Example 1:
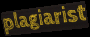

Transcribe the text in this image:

plagiarist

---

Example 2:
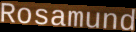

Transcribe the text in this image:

Rosamund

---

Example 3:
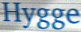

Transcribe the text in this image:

Hygge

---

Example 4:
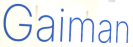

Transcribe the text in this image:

Gaiman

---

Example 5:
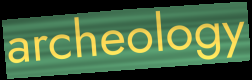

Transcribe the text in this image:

archeology